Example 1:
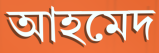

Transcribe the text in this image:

আহমেদ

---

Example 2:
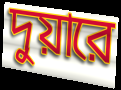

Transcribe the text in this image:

দুয়ারে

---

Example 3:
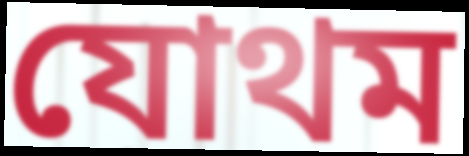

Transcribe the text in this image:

যোথম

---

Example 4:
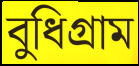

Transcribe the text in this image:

বুধিগ্রাম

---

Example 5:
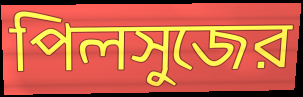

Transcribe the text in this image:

পিলসুজের